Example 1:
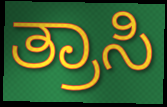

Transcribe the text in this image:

ತ್ರಾಸಿ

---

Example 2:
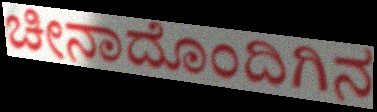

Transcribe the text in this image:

ಚೀನಾದೊಂದಿಗಿನ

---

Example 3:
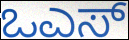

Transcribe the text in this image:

ಒಎಸ್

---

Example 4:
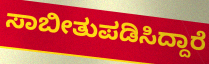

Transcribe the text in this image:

ಸಾಬೀತುಪಡಿಸಿದ್ದಾರೆ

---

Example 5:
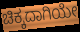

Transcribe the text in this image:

ಚಿಕ್ಕದಾಗಿಯೇ